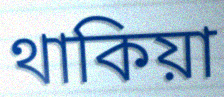
থাকিয়া